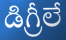
డిగ్రీలే